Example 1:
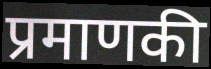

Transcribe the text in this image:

प्रमाणकी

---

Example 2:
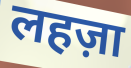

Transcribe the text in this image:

लहज़ा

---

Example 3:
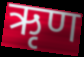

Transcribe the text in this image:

ऋृण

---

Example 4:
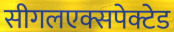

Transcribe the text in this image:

सीगलएक्सपेक्टेड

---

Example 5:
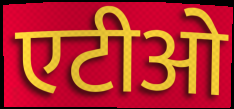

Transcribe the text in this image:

एटीओ